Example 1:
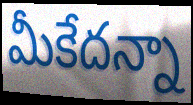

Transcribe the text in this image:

మీకేదన్నా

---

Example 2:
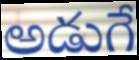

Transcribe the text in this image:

అడుగే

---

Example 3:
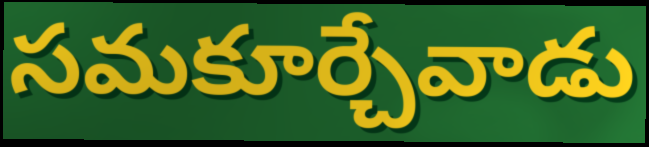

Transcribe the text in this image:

సమకూర్చేవాడు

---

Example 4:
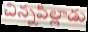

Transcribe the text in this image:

చిన్నపిల్లాడు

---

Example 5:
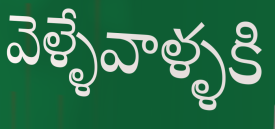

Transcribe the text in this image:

వెళ్ళేవాళ్ళకి